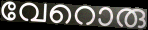
വേറൊരു